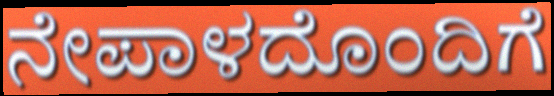
ನೇಪಾಳದೊಂದಿಗೆ